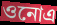
ওনোএ